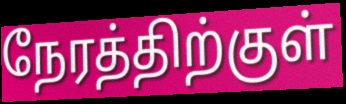
நேரத்திற்குள்